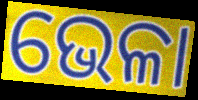
ଭେଳା